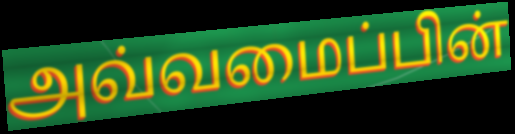
அவ்வமைப்பின்